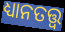
ଧ୍ୟାନତତ୍ତ୍ୱ